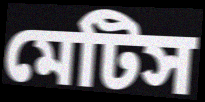
মেটিস